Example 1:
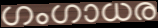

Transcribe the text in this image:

ഗംഗാധര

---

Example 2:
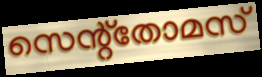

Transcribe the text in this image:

സെന്റ്തോമസ്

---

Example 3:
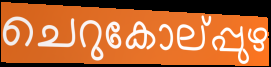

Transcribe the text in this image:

ചെറുകോല്പ്പുഴ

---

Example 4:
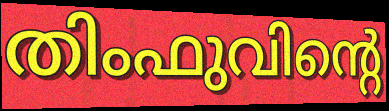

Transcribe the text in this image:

തിംഫുവിന്റെ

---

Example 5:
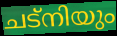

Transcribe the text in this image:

ചട്നിയും